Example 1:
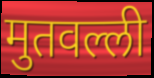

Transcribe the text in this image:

मुतवल्ली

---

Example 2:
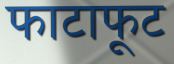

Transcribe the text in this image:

फाटाफूट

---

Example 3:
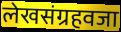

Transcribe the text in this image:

लेखसंग्रहवजा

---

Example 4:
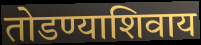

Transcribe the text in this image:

तोडण्याशिवाय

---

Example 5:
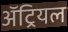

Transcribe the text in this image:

ॲट्रियल